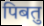
पिबतु